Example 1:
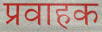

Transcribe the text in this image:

प्रवाहक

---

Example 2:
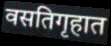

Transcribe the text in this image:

वसतिगृहात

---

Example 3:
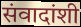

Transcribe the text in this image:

संवादांशी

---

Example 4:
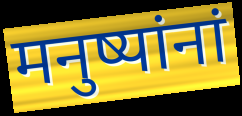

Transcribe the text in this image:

मनुष्यांनां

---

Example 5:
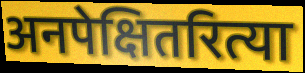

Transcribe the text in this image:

अनपेक्षितरित्या